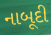
નાબૂદી